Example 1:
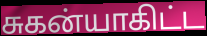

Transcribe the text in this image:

சுகன்யாகிட்ட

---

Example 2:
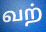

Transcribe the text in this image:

வற்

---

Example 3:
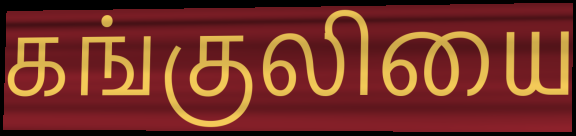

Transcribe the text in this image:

கங்குலியை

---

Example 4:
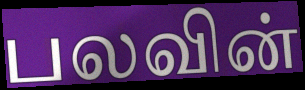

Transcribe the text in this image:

பலவின்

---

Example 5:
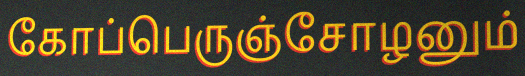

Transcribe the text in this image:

கோப்பெருஞ்சோழனும்